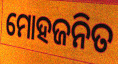
ମୋହଜନିତ